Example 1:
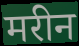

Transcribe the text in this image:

मरीन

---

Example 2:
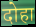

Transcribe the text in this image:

दोहा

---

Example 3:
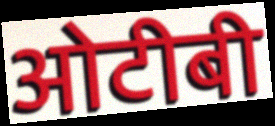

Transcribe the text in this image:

ओटीबी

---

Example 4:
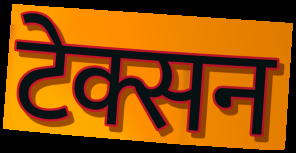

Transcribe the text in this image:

टेक्सन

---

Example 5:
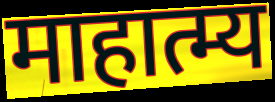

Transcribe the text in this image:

माहात्म्य